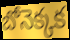
బోనెక్కక